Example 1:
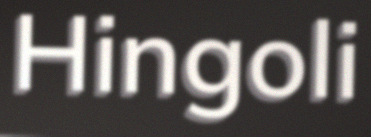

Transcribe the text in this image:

Hingoli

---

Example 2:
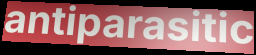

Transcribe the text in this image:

antiparasitic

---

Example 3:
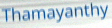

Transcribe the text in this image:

Thamayanthy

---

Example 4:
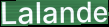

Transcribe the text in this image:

Lalande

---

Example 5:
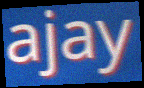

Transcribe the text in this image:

ajay